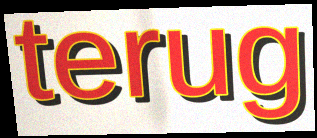
terug